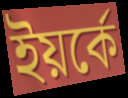
ইয়র্কে